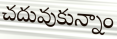
చదువుకున్నాం